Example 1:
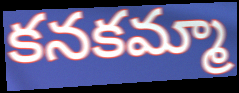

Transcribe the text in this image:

కనకమ్మా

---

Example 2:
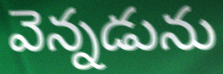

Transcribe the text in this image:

వెన్నడును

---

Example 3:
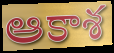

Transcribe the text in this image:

ఆకాశ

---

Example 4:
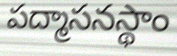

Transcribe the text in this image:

పద్మాసనస్థాం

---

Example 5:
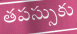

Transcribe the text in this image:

తపస్సుకు